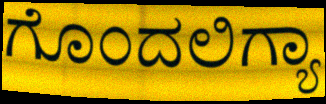
ಗೊಂದಲಿಗ್ಯಾ